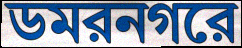
ডমরনগরে